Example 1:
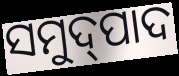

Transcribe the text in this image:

ସମୁଦ୍‌ପାଦ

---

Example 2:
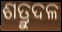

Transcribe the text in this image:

ଶତ୍ରୁଦଳ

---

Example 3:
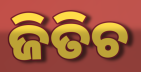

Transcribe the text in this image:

ଜିତିଚ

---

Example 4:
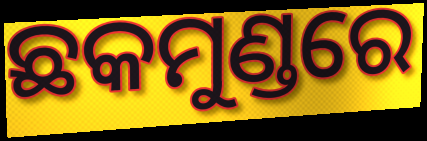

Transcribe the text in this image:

ଛକମୁଣ୍ଡରେ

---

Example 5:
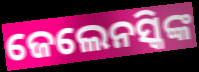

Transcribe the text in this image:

ଜେଲେନସ୍କିଙ୍କ